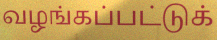
வழங்கப்பட்டுக்